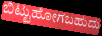
ಬಿಟ್ಟುಹೋಗಬಹುದು